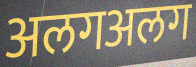
अलगअलग